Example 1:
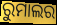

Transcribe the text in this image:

ରୁମାଲର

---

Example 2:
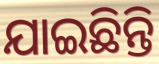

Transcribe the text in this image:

ଯାଇଛିନ୍ତି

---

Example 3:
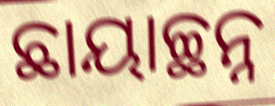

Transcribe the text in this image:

ଛାୟାଚ୍ଛନ୍ନ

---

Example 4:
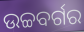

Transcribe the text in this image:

ଉଚ୍ଚବର୍ଗର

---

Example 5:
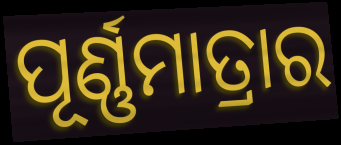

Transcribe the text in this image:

ପୂର୍ଣ୍ଣମାତ୍ରାର